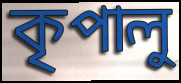
কৃপালু